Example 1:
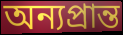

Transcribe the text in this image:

অন্যপ্রান্ত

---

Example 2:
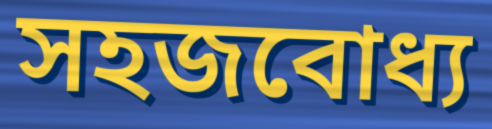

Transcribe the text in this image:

সহজবোধ্য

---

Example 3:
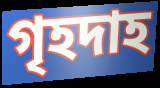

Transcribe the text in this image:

গৃহদাহ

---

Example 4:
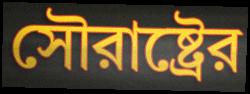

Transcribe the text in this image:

সৌরাষ্ট্রের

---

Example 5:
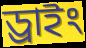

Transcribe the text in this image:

ড্রাইং